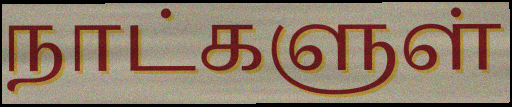
நாட்களுள்